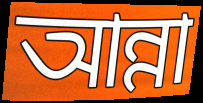
আন্না